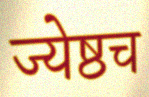
ज्येष्ठच